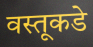
वस्तूकडे